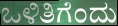
ಒಳಿತಿಗೆಂದು